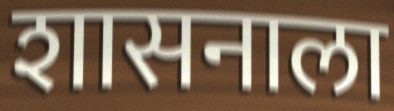
शासनाला